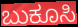
ಬುಕೂಸಿ